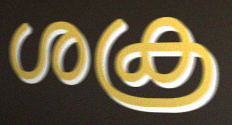
ശക്ര